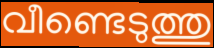
വീണ്ടെടുത്തു